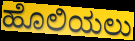
ಹೊಲಿಯಲು